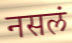
नसलं